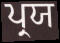
ਪ੍ਰਯ